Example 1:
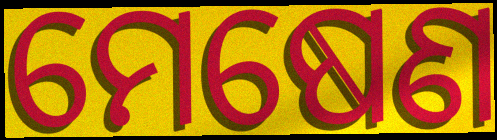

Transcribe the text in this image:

ମେଷେଣ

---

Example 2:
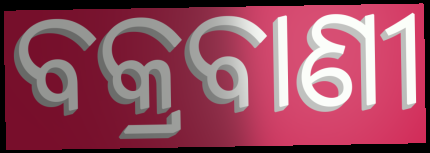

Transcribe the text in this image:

ବକ୍ରବାଣୀ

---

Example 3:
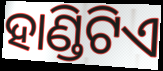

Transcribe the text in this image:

ହାଣ୍ଡିଟିଏ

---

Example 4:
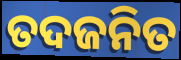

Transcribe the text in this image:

ତଦଜନିତ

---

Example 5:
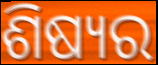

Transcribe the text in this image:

ଶିଷ୍ୟର